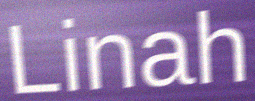
Linah